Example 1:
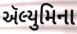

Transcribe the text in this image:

ઍલ્યુમિના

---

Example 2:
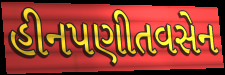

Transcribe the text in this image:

હીનપણીતવસેન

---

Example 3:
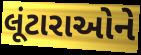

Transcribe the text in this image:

લૂંટારાઓને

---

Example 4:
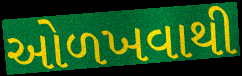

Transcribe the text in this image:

ઓળખવાથી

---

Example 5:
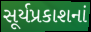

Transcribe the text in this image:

સૂર્યપ્રકાશનાં